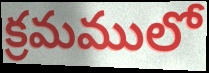
క్రమములో